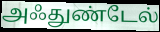
அஃதுண்டேல்